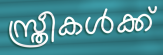
സ്ത്രീകൾക്ക്